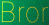
Bror